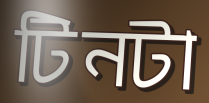
টিনটা